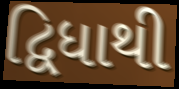
દ્વિધાથી